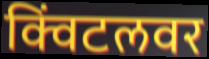
क्विंटलवर